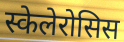
स्केलेरोसिस